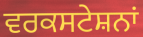
ਵਰਕਸਟੇਸ਼ਨਾਂ